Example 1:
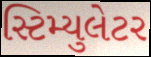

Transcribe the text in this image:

સ્ટિમ્યુલેટર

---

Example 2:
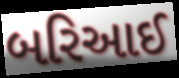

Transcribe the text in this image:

બરિઆઈ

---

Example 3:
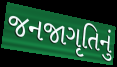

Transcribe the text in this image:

જનજાગૃતિનું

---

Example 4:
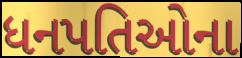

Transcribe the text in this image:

ધનપતિઓના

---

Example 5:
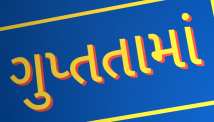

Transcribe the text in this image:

ગુપ્તતામાં